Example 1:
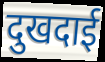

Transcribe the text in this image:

दुखदाई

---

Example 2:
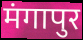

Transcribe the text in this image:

मंगापुर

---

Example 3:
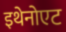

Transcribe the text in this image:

इथेनोएट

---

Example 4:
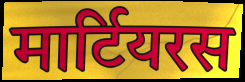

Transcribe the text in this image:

मार्टियरस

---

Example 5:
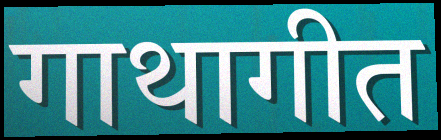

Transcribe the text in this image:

गाथागीत